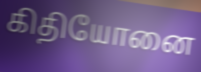
கிதியோனை